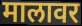
मालावर